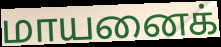
மாயனைக்